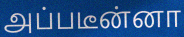
அப்படீன்னா